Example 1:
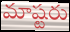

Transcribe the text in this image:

మాష్టరు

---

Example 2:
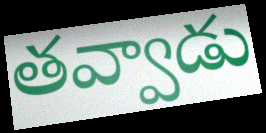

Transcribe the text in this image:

తవ్వాడు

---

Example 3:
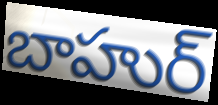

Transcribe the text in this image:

బాహుర్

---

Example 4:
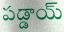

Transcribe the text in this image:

పడ్డాయ్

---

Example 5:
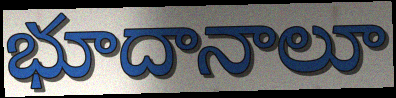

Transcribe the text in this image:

భూదానాలూ